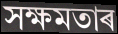
সক্ষমতাৰ